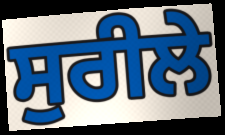
ਸੁਰੀਲੇ